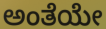
ಅಂತೆಯೇ